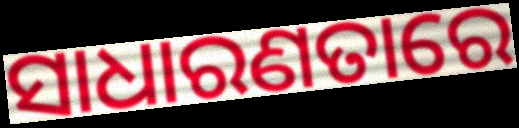
ସାଧାରଣତାରେ